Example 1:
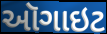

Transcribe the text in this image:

ઑગાઇટ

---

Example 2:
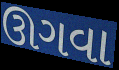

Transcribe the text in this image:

ઊગવા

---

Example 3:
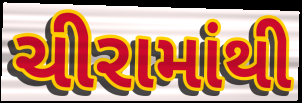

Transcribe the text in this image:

ચીરામાંથી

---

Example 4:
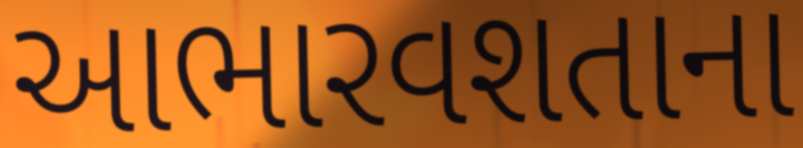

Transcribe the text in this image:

આભારવશતાના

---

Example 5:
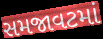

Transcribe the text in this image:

સમજાવટમાં